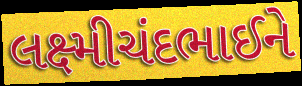
લક્ષ્મીચંદભાઈને